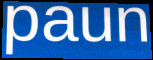
paun